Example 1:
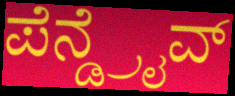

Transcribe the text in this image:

ಪೆನ್ಡ್ರೈವ್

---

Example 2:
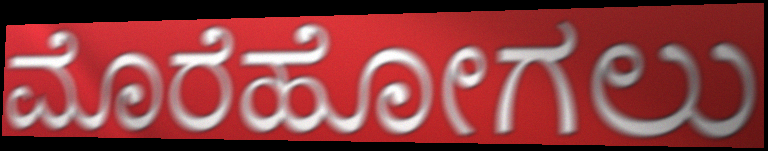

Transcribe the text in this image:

ಮೊರೆಹೋಗಲು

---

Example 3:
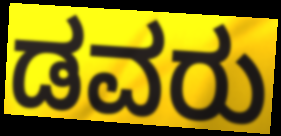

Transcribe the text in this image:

ಡವರು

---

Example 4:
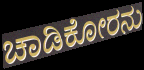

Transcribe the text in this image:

ಚಾಡಿಕೋರನು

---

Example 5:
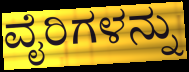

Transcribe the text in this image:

ವೈರಿಗಳನ್ನು